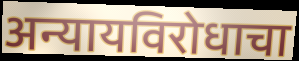
अन्यायविरोधाचा